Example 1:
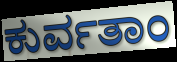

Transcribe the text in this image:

ಕುರ್ವತಾಂ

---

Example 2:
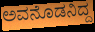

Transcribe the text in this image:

ಅವನೊಡನಿದ್ದ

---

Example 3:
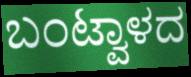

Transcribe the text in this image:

ಬಂಟ್ವಾಳದ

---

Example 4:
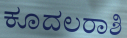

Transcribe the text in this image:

ಕೂದಲರಾಶಿ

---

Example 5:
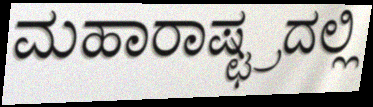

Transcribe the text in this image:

ಮಹಾರಾಷ್ಟ್ರದಲ್ಲಿ